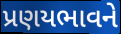
પ્રણયભાવને